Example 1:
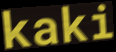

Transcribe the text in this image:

kaki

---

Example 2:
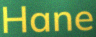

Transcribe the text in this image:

Hane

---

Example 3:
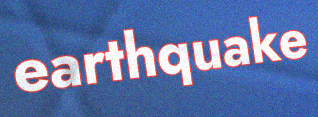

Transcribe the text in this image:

earthquake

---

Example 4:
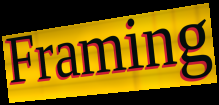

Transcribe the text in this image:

Framing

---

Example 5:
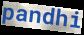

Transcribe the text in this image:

pandhi